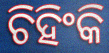
ଚିହିଂକି